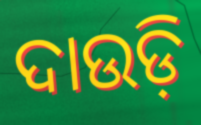
ଦାଉଡ଼ି